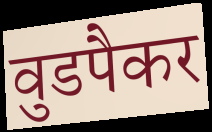
वुडपैकर